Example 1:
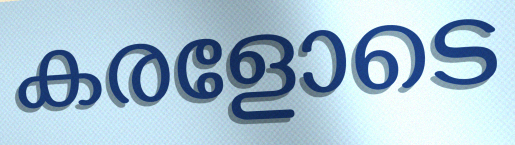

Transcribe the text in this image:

കരളോടെ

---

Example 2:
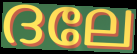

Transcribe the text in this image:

ദലേ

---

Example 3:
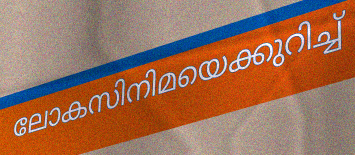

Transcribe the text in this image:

ലോകസിനിമയെക്കുറിച്ച്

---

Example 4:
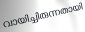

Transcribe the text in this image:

വായിച്ചിരുന്നതായി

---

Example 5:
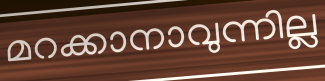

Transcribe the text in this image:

മറക്കാനാവുന്നില്ല